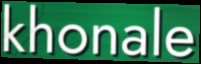
khonale